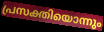
പ്രസക്തിയൊന്നും